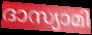
ദാസ്യാമി